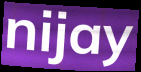
nijay